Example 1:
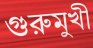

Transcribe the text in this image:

গুরুমুখী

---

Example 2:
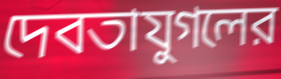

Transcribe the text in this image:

দেবতাযুগলের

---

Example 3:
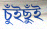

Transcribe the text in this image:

চুঁইছুঁই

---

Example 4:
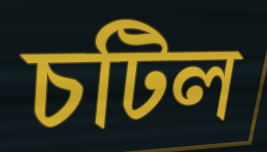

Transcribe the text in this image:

চটিল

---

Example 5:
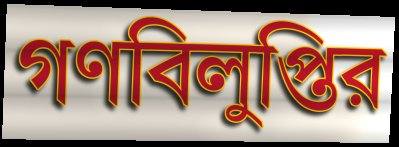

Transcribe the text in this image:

গণবিলুপ্তির